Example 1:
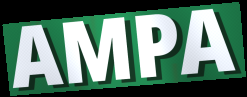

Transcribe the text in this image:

AMPA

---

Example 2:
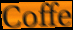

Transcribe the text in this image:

Coffe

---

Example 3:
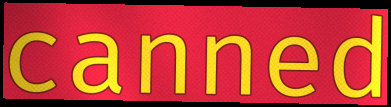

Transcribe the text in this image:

canned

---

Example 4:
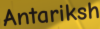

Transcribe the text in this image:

Antariksh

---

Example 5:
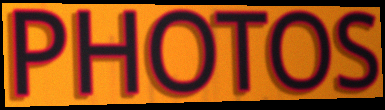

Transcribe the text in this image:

PHOTOS